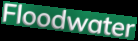
Floodwater